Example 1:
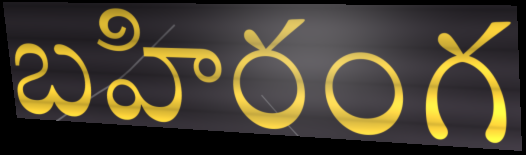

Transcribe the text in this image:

బహిరంగ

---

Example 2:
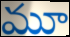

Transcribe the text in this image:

మూ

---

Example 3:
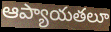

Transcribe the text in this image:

ఆప్యాయతలూ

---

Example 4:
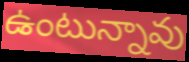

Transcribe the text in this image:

ఉంటున్నావు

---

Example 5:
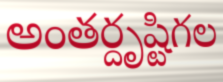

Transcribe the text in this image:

అంతర్దృష్టిగల